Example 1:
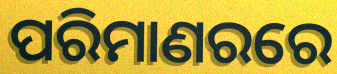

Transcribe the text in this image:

ପରିମାଣରରେ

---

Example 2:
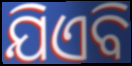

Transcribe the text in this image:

ଯିଏବି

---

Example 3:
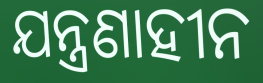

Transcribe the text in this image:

ଯନ୍ତ୍ରଣାହୀନ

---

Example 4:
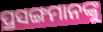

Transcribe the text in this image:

ପ୍ରସଙ୍ଗମାନଙ୍କୁ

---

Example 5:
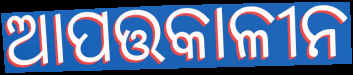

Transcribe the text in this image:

ଆପତ୍ତକାଳୀନ